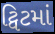
ટ્વિટમાં